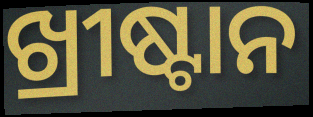
ଖ୍ରୀଷ୍ଟାନ